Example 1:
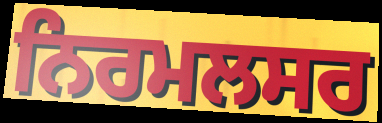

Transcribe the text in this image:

ਨਿਰਮਲਸਰ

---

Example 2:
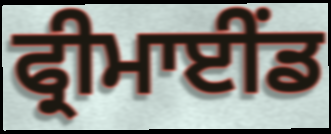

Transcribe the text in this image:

ਫ੍ਰੀਮਾਈਂਡ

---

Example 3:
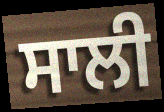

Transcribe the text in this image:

ਸਾਲੀ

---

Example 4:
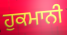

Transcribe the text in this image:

ਹੁਕਮਾਨੀ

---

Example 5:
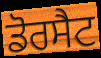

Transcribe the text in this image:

ਡੋਰਸੈਟ